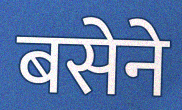
बसेने